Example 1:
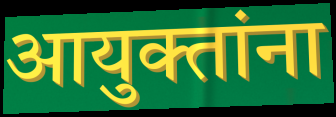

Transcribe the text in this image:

आयुक्तांना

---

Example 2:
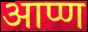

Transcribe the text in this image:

आप्ण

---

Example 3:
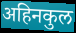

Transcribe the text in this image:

अहिनकुल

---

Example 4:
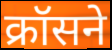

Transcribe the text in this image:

क्रॉसने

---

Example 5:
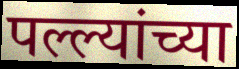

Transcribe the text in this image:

पल्ल्यांच्या